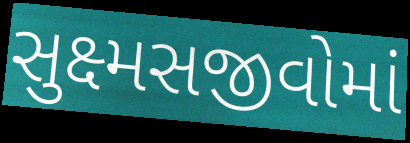
સુક્ષ્મસજીવોમાં